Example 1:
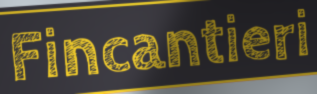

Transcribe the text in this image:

Fincantieri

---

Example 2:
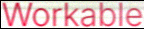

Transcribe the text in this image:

Workable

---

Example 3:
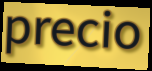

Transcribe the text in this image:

precio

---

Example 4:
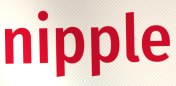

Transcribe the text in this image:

nipple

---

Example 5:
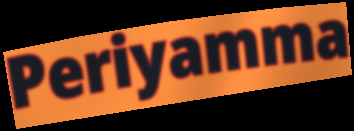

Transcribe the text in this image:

Periyamma